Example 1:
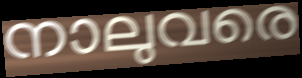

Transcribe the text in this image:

നാലുവരെ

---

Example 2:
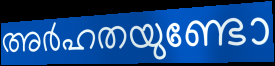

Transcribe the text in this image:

അർഹതയുണ്ടോ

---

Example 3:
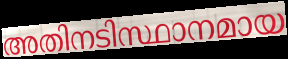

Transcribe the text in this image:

അതിനടിസ്ഥാനമായ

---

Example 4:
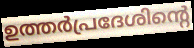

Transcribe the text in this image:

ഉത്തർപ്രദേശിന്റെ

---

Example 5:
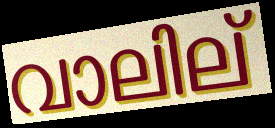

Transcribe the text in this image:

വാലില്